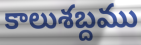
కాలుశబ్దము